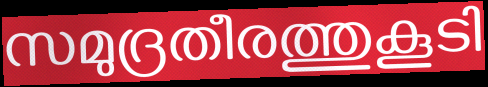
സമുദ്രതീരത്തുകൂടി